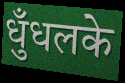
धुँधलके